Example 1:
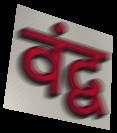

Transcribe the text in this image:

वंद्व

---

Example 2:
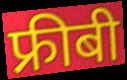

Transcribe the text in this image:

फ्रीबी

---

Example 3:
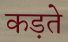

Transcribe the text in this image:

कड़ते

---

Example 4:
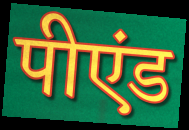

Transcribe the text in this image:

पीएंड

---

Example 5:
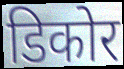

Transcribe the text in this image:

डिकोर